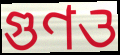
গুণও